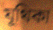
যূথিকা